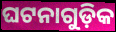
ଘଟନାଗୁଡ଼ିକ